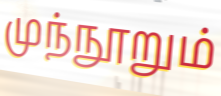
முந்நூறும்